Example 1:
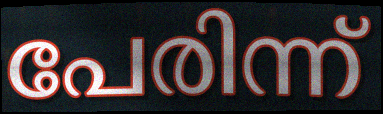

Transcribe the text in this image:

പേരിന്ന്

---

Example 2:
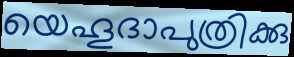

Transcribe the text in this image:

യെഹൂദാപുത്രിക്കു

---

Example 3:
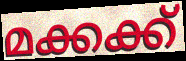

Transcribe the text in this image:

മക്കക്ക്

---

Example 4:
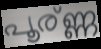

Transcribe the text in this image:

പൂര്ണ്ണ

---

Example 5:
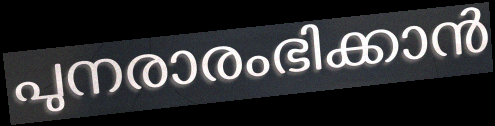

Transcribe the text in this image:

പുനരാരംഭിക്കാൻ